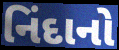
નિંદાનો